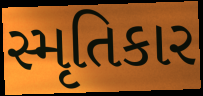
સ્મૃતિકાર